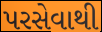
પરસેવાથી